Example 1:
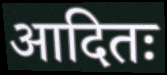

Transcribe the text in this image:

आदितः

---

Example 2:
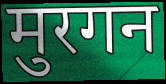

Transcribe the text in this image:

मुरगन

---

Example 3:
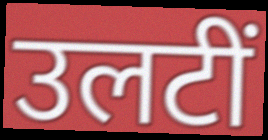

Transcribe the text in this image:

उलटीं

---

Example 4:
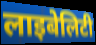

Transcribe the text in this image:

लाइबेलिटी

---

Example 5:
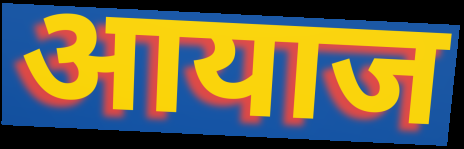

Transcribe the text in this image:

आयाज